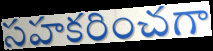
సహకరించగా